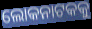
ଲୋକନାଟକକୁ